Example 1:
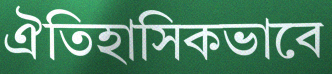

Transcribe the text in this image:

ঐতিহাসিকভাবে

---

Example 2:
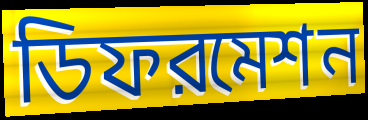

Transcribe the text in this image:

ডিফরমেশন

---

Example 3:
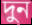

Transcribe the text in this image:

দুন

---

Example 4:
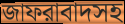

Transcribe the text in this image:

জাফরাবাদসহ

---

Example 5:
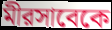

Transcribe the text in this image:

মীরসাবেকে